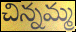
చిన్నమ్మ